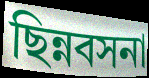
ছিন্নবসনা